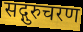
सद्गुरुचरण